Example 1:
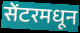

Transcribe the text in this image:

सेंटरमधून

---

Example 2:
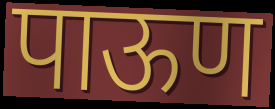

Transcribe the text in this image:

पाऊण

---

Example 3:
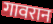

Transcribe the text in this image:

गावरान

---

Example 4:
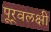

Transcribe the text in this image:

पूर्वलक्षी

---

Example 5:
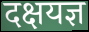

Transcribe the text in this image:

दक्षयज्ञ